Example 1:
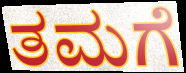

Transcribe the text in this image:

ತಮಗೆ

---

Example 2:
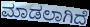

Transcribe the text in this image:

ಮಾಡಲಾಗಿದೆ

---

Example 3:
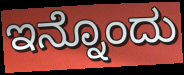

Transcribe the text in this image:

ಇನ್ನೊಂದು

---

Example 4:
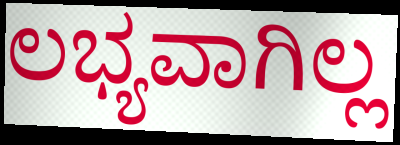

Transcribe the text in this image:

ಲಭ್ಯವಾಗಿಲ್ಲ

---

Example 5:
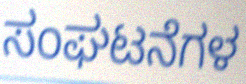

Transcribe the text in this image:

ಸಂಘಟನೆಗಳ